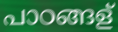
പാഠങ്ങള്